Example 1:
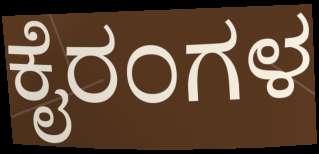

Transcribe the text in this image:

ಕೈರಂಗಳ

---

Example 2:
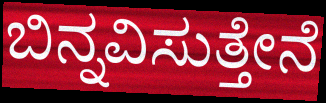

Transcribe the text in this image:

ಬಿನ್ನವಿಸುತ್ತೇನೆ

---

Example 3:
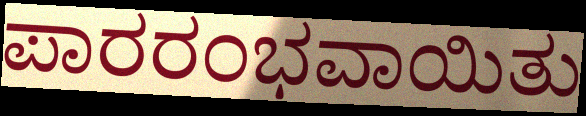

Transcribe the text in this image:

ಪಾರರಂಭವಾಯಿತು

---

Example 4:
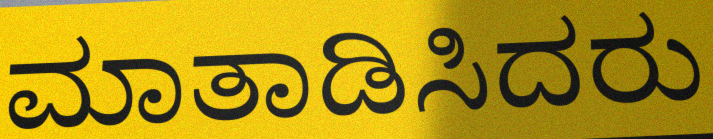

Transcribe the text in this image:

ಮಾತಾಡಿಸಿದರು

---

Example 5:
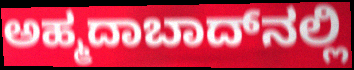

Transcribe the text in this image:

ಅಹ್ಮದಾಬಾದ್‍ನಲ್ಲಿ